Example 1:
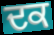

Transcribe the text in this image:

ਦਕ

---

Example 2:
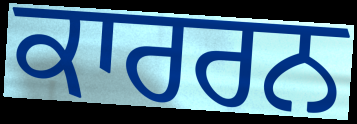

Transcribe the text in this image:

ਕਾਰਰਨ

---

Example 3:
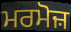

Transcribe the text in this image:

ਮਰਮੋਜ਼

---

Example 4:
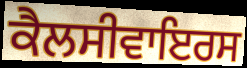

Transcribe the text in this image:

ਕੈਲਸੀਵਾਇਰਸ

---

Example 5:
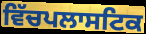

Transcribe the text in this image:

ਵਿੱਚਪਲਾਸਟਿਕ